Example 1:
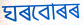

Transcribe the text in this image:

ঘৰবোৰৰ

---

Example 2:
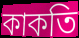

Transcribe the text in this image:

কাকতি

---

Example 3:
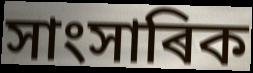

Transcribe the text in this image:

সাংসাৰিক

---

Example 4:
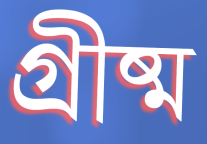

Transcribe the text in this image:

গ্ৰীষ্ম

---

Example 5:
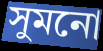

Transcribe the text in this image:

সুমনো